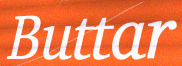
Buttar